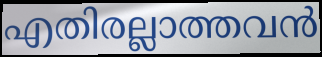
എതിരല്ലാത്തവൻ